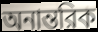
অনান্তরিক